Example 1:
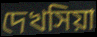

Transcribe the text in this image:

দেখসিয়া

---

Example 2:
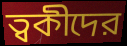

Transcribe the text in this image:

ত্বকীদের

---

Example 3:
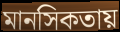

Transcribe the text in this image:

মানসিকতায়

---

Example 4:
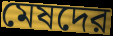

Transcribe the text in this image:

মেষদের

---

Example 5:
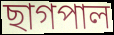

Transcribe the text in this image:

ছাগপাল